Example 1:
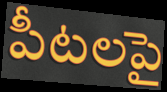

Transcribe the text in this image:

పీటలపై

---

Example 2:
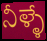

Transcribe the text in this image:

నీళ్ళే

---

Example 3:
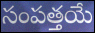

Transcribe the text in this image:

సంపత్తయే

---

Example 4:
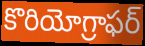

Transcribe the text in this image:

కొరియోగ్రాఫర్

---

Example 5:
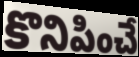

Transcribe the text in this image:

కొనిపించే